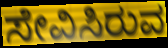
ಸೇವಿಸಿರುವ